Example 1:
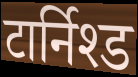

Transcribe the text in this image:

टार्निश्ड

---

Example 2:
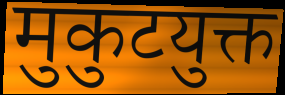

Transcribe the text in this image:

मुकुटयुक्त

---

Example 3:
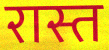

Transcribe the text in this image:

रास्त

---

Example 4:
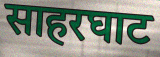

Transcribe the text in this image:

साहरघाट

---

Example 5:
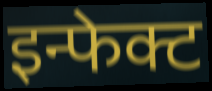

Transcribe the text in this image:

इन्फेक्ट